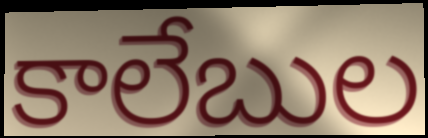
కాలేబుల